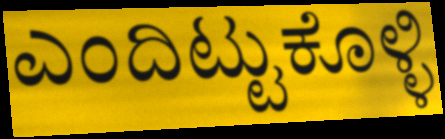
ಎಂದಿಟ್ಟುಕೊಳ್ಳಿ